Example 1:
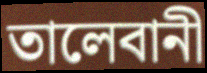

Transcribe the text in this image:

তালেবানী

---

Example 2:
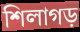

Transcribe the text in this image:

শিলাগড়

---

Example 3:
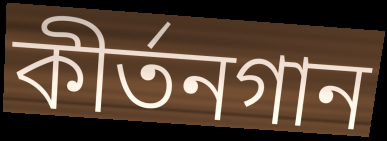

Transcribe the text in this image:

কীর্তনগান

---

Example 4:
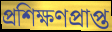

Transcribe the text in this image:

প্রশিক্ষণপ্রাপ্ত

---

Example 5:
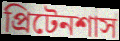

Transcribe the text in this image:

প্রিটেনশাস